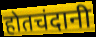
होतचंदानी